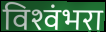
विश्वंभरा